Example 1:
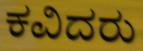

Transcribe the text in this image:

ಕವಿದರು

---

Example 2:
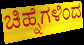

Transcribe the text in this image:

ಚಿಹ್ನೆಗಳಿಂದ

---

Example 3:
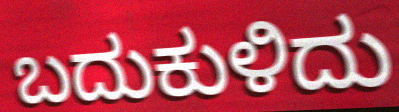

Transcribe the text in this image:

ಬದುಕುಳಿದು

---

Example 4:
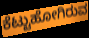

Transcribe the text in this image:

ಕೆಟ್ಟುಹೋಗಿರುವ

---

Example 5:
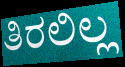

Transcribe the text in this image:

ತಿರಲಿಲ್ಲ